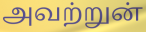
அவற்றுன்